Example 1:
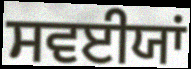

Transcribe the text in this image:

ਸਵਈਯਾਂ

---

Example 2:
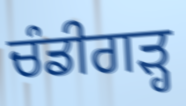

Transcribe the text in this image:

ਚੰਡੀਗਡ਼੍ਹ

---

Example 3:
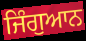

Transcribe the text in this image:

ਜਿੰਗੁਆਨ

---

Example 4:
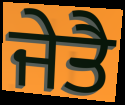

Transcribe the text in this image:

ਜੇਤੈ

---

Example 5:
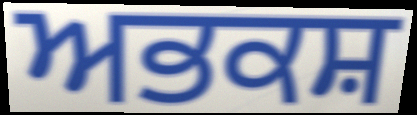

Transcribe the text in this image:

ਅਭਕਸ਼